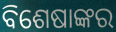
ବିଶେଷାଙ୍କର